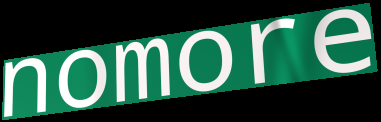
nomore